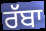
ਰੱਬਾ